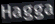
Hagga